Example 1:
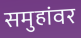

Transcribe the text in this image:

समुहांवर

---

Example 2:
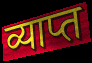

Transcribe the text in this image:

व्याप्त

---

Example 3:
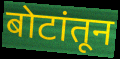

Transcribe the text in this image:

बोटांतून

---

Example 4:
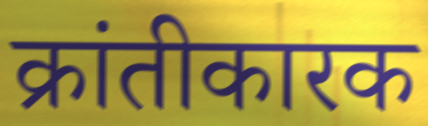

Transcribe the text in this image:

क्रांतीकारक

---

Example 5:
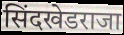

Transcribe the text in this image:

सिंदखेडराजा